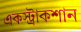
একস্ট্রাকশান